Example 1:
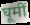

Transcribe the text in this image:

घूमीं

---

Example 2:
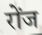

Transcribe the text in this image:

रोंज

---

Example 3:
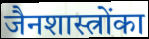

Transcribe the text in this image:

जैनशास्त्रोंका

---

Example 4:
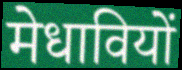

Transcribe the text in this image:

मेधावियों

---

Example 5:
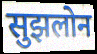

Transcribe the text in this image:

सुझलोन